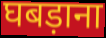
घबड़ाना